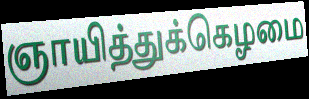
ஞாயித்துக்கெழமை